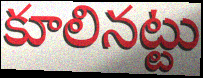
కూలినట్టు